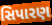
સિપારણ